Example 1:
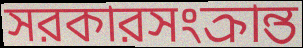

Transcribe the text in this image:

সরকারসংক্রান্ত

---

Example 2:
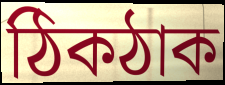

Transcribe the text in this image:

ঠিকঠাক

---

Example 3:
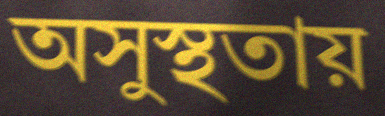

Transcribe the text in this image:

অসুস্থতায়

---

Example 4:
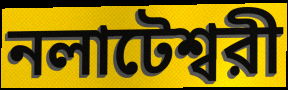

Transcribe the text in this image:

নলাটেশ্বরী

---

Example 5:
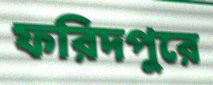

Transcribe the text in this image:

ফরিদপুরে